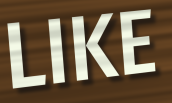
LIKE